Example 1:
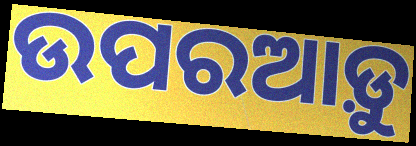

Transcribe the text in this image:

ଉପରଆଡ଼ୁ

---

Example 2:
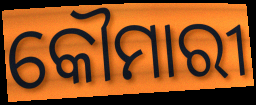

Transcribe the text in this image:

କୌମାରୀ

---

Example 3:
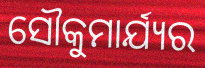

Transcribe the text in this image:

ସୌକୁମାର୍ଯ୍ୟର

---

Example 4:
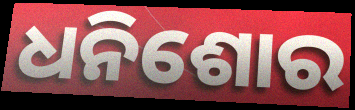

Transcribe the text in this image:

ଧନିଶୋର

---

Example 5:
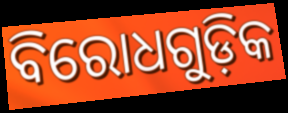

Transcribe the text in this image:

ବିରୋଧଗୁଡ଼ିକ